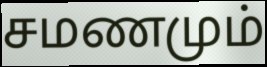
சமணமும்